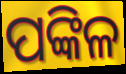
ପଙ୍କିଳ